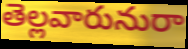
తెల్లవారునురా